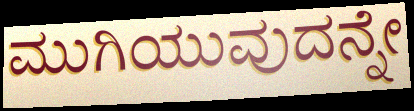
ಮುಗಿಯುವುದನ್ನೇ